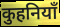
कुहनियाँ